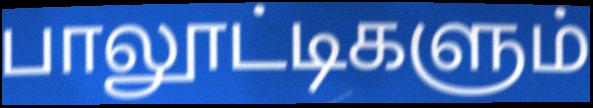
பாலூட்டிகளும்